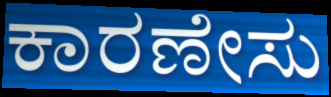
ಕಾರಣೇಸು